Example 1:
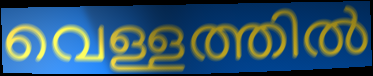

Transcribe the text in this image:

വെള്ളത്തിൽ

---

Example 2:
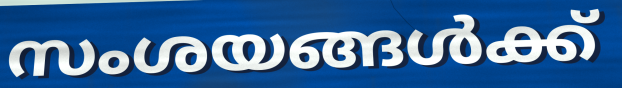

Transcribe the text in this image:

സംശയങ്ങൾക്ക്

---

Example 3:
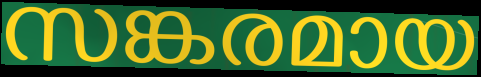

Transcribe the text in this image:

സങ്കരമായ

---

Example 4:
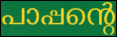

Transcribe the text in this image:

പാപ്പന്റെ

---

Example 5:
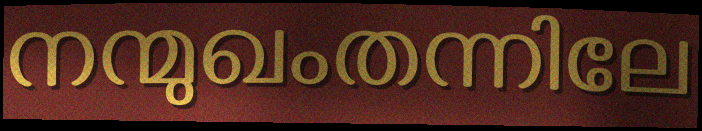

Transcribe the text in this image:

നന്മുഖംതന്നിലേ